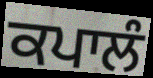
ਕਪਾਲੰ